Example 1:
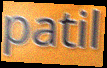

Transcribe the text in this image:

patil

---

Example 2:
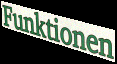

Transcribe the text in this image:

Funktionen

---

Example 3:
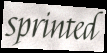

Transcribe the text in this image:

sprinted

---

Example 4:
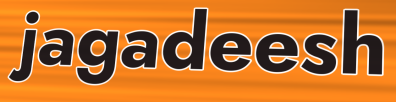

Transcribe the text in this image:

jagadeesh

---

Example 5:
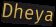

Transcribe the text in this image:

Dheya